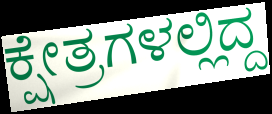
ಕ್ಷೇತ್ರಗಳಲ್ಲಿದ್ದ